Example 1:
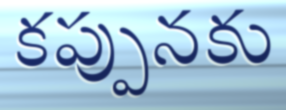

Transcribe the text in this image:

కప్పునకు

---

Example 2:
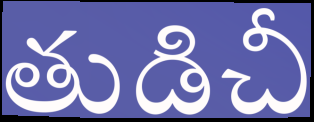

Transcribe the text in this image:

తుడిచీ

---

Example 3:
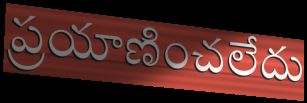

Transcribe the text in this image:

ప్రయాణించలేదు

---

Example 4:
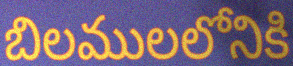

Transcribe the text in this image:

బిలములలోనికి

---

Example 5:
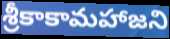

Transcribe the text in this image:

శ్రీకాకామహాజని